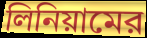
লিনিয়ামের